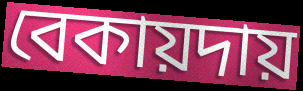
বেকায়দায়